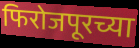
फिरोजपूरच्या